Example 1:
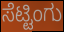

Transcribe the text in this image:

ಸೆಟ್ಟಿಂಗು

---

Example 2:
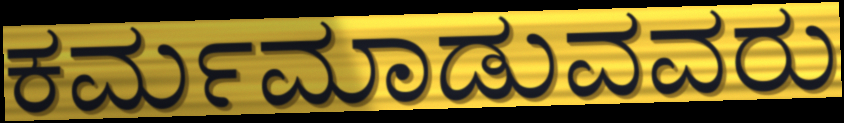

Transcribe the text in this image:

ಕರ್ಮಮಾಡುವವರು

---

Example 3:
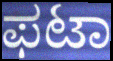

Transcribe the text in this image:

ಫಟಾ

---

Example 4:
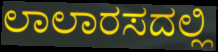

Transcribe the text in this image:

ಲಾಲಾರಸದಲ್ಲಿ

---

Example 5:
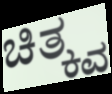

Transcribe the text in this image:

ಚಿತ್ಕ್ವ